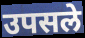
उपसले